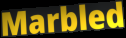
Marbled